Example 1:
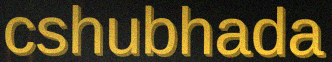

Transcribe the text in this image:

cshubhada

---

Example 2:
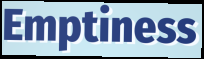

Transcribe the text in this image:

Emptiness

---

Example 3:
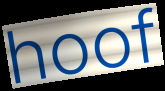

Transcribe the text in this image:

hoof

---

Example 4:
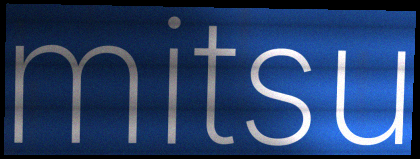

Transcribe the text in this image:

mitsu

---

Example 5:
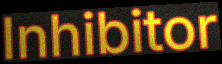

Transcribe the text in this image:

Inhibitor